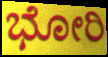
ಭೋರಿ